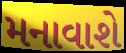
મનાવાશે